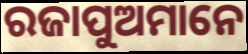
ରଜାପୁଅମାନେ